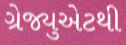
ગ્રેજ્યુએટથી